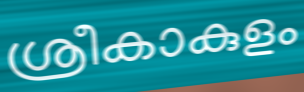
ശ്രീകാകുളം